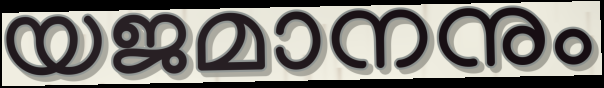
യജമാനനും